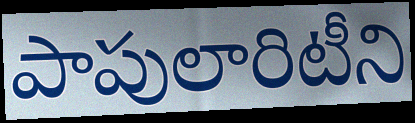
పాపులారిటీని